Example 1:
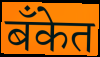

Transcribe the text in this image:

बॅंकेत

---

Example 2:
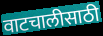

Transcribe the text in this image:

वाटचालीसाठी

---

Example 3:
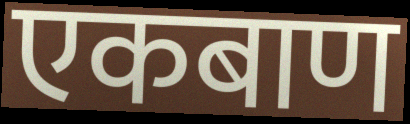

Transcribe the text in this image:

एकबाण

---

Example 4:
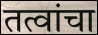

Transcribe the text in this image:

तत्वांचा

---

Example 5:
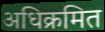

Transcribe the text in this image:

अधिक्रमित